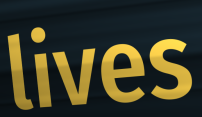
lives